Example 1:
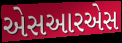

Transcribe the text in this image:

એસઆરએસ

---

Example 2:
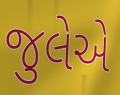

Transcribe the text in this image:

જુલેએ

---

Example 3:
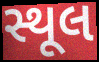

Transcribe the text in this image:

સ્થૂલ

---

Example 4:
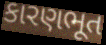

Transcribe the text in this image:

કારણભૂત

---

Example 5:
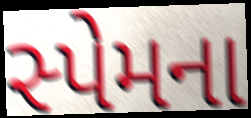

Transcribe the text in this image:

સ્પેમના